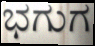
ಭಗುಗ